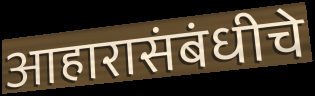
आहारासंबंधीचे